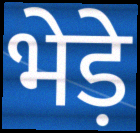
भेड़े